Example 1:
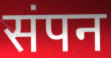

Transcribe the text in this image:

संपन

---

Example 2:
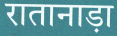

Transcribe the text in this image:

रातानाड़ा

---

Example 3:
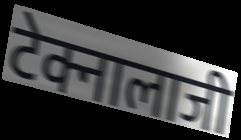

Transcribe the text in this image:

टेक्नालाजी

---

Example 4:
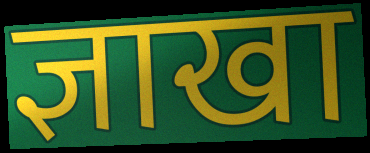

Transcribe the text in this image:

ज्ञाखा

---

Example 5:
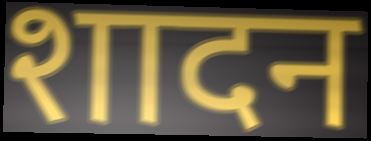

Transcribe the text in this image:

शादन